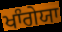
ਖਾੰਗੇਯਾ